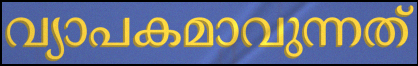
വ്യാപകമാവുന്നത്